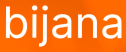
bijana